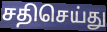
சதிசெய்து